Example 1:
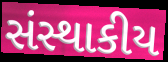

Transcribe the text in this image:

સંસ્થાકીય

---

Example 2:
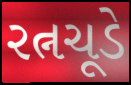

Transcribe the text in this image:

રત્નચૂડે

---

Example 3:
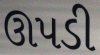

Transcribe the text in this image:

ઊપડી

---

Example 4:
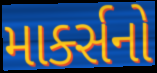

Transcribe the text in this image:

માર્ક્સનો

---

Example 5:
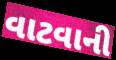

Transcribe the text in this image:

વાટવાની